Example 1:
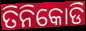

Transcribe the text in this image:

ତିନିକୋଡି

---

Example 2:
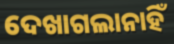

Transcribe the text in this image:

ଦେଖାଗଲାନାହିଁ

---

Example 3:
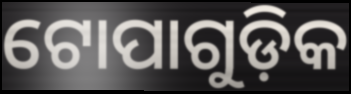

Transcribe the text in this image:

ଟୋପାଗୁଡ଼ିକ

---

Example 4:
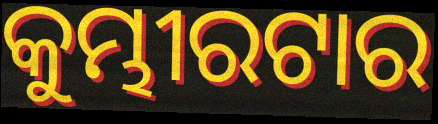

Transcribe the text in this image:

କୁମ୍ଭୀରଟାର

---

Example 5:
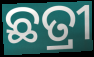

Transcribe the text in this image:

ଛତ୍ରୀ